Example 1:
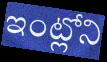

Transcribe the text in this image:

ఇంట్లోని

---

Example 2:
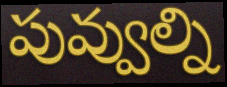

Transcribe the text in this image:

పువ్వుల్ని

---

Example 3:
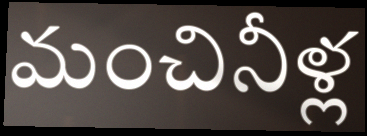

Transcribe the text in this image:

మంచినీళ్ల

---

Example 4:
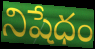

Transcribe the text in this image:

నిషేధం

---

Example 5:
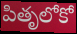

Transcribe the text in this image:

పితృలోకో